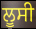
ਲੂਸੀ